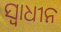
ସ୍ବାଧୀନ